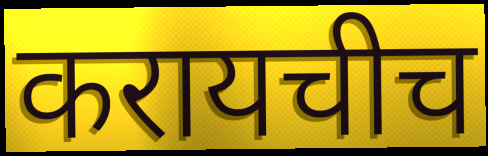
करायचीच